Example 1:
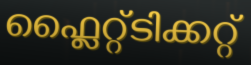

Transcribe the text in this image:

ഫ്ലൈറ്റ്ടിക്കറ്റ്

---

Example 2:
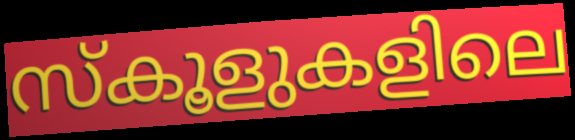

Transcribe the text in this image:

സ്കൂളുകളിലെ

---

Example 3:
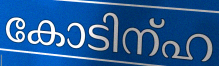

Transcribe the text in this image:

കോടിന്ഹ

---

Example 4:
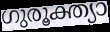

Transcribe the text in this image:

ഗുരൂക്ത്യാ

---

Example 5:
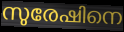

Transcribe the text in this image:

സുരേഷിനെ